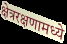
क्षेत्ररक्षणामध्ये